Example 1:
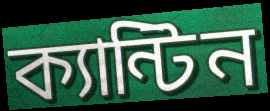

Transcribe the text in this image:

ক্যান্টিন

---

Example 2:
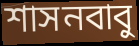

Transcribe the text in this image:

শাসনবাবু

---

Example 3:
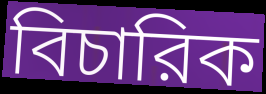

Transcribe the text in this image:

বিচারিক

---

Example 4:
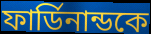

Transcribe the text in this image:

ফার্ডিনান্ডকে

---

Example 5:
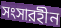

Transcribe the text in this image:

সংসারহীন